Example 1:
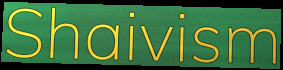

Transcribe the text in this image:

Shaivism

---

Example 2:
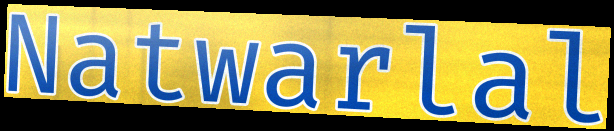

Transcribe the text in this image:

Natwarlal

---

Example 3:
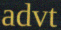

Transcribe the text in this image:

advt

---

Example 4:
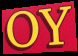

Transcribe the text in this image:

OY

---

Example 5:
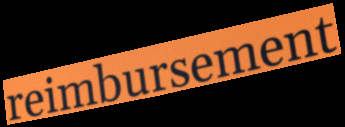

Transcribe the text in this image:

reimbursement